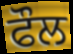
ਫੌਲ